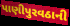
પાણીપુરવઠાની